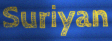
Suriyan